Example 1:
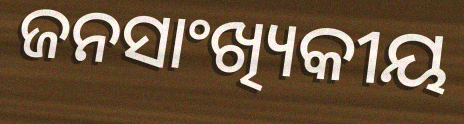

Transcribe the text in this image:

ଜନସାଂଖ୍ୟିକୀୟ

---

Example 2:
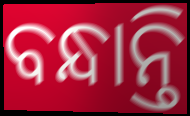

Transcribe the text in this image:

ବନ୍ଧାନ୍ତି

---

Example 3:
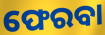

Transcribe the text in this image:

ଫେରବା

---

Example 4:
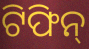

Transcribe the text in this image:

ଟିଫିନ୍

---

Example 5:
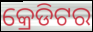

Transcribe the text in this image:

କ୍ରେଡିଟର